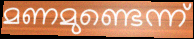
മണമുണ്ടെന്ന്